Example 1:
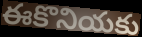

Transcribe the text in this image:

ఈకొనియకు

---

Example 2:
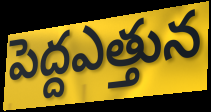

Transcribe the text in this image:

పెద్దఎత్తున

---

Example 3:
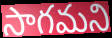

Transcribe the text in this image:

సాగమని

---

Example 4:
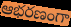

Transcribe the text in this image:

ఆభరణంగా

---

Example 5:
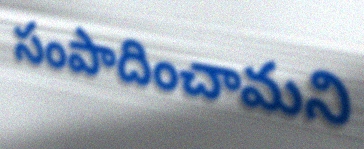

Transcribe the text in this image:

సంపాదించామని